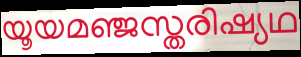
യൂയമഞ്ജസ്തരിഷ്യഥ